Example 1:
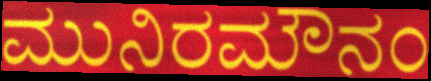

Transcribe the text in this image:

ಮುನಿರಮೌನಂ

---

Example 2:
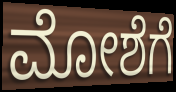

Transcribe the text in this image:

ಮೋಶೆಗೆ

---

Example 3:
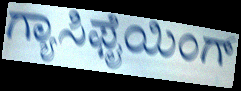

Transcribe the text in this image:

ಗ್ಯಾಸಿಫೈಯಿಂಗ್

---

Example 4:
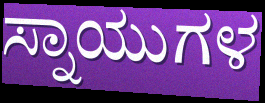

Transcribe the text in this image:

ಸ್ನಾಯುಗಳ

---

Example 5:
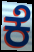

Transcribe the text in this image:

ಕೆ